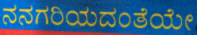
ನನಗರಿಯದಂತೆಯೇ